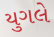
યુગલે